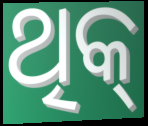
ଥିକ୍